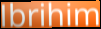
Ibrihim